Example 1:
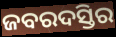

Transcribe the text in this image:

ଜବରଦସ୍ତିର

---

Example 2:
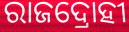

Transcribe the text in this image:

ରାଜଦ୍ରୋହୀ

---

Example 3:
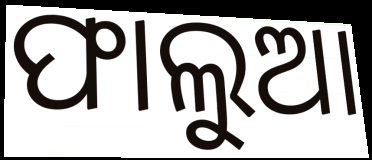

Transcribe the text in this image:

ଫାଲୁଆ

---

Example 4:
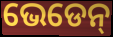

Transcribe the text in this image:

ଭେଡେନ୍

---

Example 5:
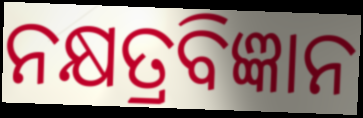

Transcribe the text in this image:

ନକ୍ଷତ୍ରବିଜ୍ଞାନ